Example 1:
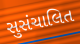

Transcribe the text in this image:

સુસંચાલિત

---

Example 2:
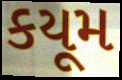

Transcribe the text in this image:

કયૂમ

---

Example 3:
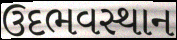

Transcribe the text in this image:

ઉદભવસ્થાન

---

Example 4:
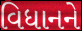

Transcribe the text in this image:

વિધાનને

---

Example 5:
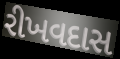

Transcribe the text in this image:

રીખવદાસ